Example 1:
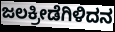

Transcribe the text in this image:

ಜಲಕ್ರೀಡೆಗಿಳಿದನ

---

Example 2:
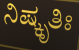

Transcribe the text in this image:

ನಿಷ್ಕೃತಿಃ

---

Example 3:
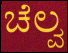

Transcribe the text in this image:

ಚೆಲ್ವ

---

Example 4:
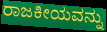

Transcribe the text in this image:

ರಾಜಕೀಯವನ್ನು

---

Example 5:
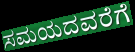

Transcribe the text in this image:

ಸಮಯದವರೆಗೆ